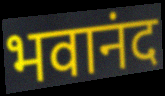
भवानंद